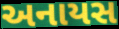
અનાયસ